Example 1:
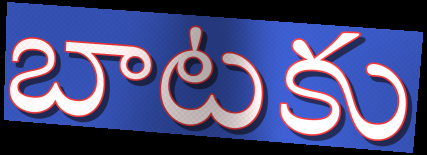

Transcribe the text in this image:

బాటకు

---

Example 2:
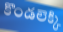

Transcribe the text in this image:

కొండలెక్కి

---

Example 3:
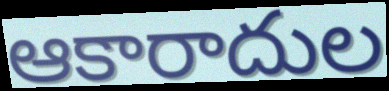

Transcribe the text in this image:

ఆకారాదుల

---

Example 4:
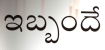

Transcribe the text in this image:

ఇబ్బందే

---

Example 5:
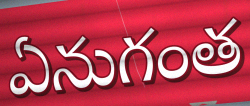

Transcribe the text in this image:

ఏనుగంత